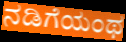
ನಡಿಗೆಯಂಥ